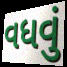
વધવું